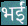
भईं